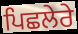
ਪਿਛਲੇਰੇ